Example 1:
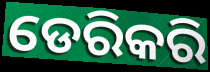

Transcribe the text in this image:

ଡେରିକରି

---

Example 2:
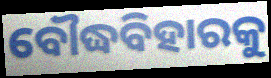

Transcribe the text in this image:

ବୌଦ୍ଧବିହାରକୁ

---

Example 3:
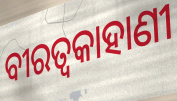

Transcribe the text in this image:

ବୀରତ୍ୱକାହାଣୀ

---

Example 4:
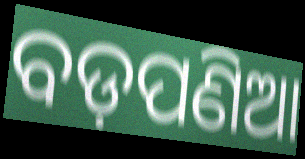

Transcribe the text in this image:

ବଡ଼ପଣିଆ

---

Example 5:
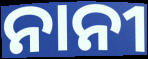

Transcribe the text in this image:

ନାନୀ